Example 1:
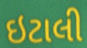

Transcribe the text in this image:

ઇટાલી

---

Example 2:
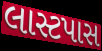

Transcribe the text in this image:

લાસ્ટપાસ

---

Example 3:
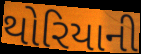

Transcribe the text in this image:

થોરિયાની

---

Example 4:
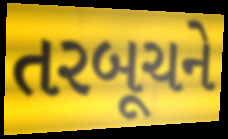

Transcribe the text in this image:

તરબૂચને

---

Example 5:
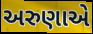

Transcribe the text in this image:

અરુણાએ